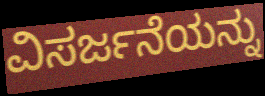
ವಿಸರ್ಜನೆಯನ್ನು